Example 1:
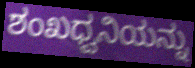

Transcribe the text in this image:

ಶಂಖಧ್ವನಿಯನ್ನು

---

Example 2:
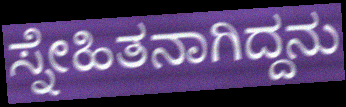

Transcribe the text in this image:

ಸ್ನೇಹಿತನಾಗಿದ್ದನು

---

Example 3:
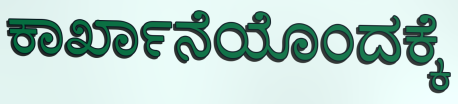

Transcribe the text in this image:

ಕಾರ್ಖಾನೆಯೊಂದಕ್ಕೆ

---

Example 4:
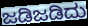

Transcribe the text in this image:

ಜಡಿಜಡಿದು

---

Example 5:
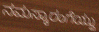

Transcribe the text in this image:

ನಮಸ್ಕಾರಂಗೆಯ್ದು